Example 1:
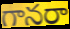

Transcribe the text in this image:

గానరా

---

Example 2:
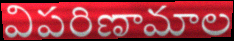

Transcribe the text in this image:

విపరిణామాల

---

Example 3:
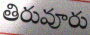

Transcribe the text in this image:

తిరువూరు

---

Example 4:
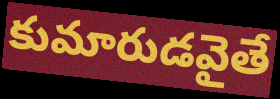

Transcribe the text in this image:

కుమారుడవైతే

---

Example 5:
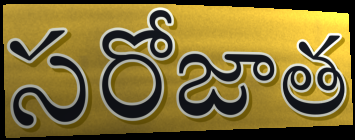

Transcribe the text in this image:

సరోజాత